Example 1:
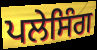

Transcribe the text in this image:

ਪਲੇਸਿੰਗ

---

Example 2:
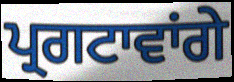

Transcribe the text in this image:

ਪ੍ਰਗਟਾਵਾਂਗੇ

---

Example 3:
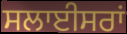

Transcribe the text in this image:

ਸਲਾਈਸਰਾਂ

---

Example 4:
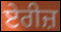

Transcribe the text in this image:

ਏਰੀਜ਼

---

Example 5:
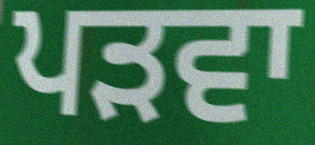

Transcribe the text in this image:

ਪੜਵਾ